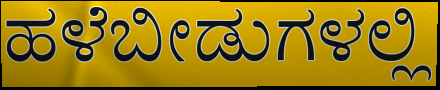
ಹಳೆಬೀಡುಗಳಲ್ಲಿ